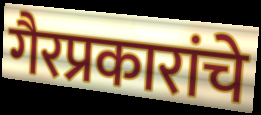
गैरप्रकारांचे